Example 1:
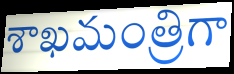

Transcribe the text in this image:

శాఖమంత్రిగా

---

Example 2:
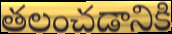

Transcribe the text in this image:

తలంచడానికి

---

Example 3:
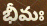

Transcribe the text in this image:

భీమః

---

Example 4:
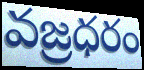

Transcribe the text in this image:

వజ్రధరం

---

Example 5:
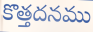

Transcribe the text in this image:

కొత్తదనము